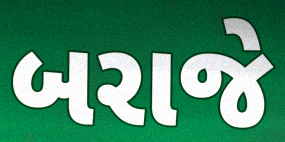
બરાજે